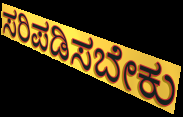
ಸರಿಪಡಿಸಬೇಕು